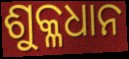
ଶୁକ୍ଳଧାନ